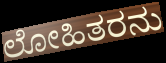
ಲೋಹಿತರನು